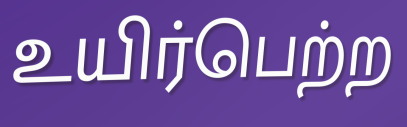
உயிர்பெற்ற